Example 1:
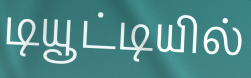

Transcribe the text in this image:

டியூட்டியில்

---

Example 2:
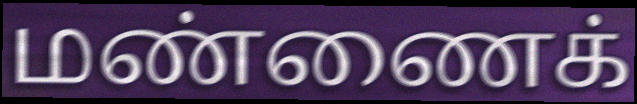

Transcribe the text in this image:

மண்ணைக்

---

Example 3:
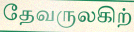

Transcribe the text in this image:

தேவருலகிற்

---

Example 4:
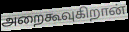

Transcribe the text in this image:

அறைகூவுகிறான்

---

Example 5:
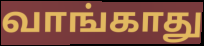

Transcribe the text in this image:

வாங்காது